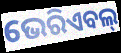
ଭେରିଏବଲ୍